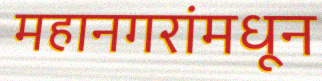
महानगरांमधून